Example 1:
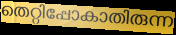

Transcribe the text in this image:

തെറ്റിപ്പോകാതിരുന്ന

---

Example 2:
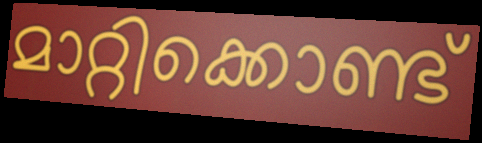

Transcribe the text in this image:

മാറ്റിക്കൊണ്ട്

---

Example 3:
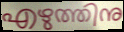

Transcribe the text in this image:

എഴുത്തിനു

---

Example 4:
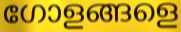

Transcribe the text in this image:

ഗോളങ്ങളെ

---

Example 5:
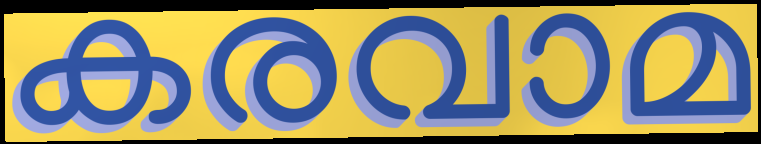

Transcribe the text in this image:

കരവാമ